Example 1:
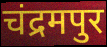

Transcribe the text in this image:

चंद्रमपुर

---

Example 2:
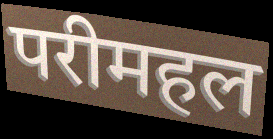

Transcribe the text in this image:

परीमहल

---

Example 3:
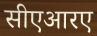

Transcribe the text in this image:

सीएआरए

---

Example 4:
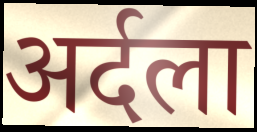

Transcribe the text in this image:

अर्दला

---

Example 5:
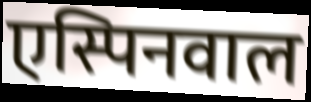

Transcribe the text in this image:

एस्पिनवाल